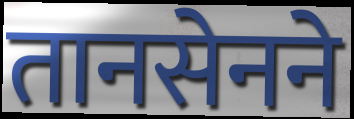
तानसेनने